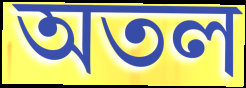
অতল